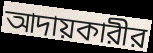
আদায়কারীর